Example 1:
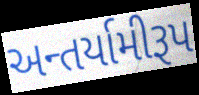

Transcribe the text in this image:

અન્તર્યામીરૂપ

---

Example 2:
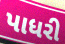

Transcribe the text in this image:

પાધરી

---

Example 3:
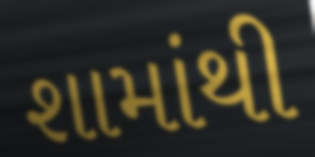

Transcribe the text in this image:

શામાંથી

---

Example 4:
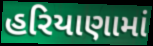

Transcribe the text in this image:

હરિયાણામાં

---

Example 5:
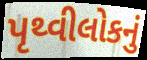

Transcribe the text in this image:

પૃથ્વીલોકનું